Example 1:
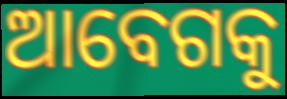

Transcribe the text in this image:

ଆବେଗକୁ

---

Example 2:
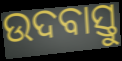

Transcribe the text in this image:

ଉଦବାସ୍ତୁ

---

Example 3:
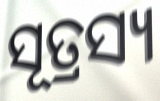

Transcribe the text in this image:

ସୂତ୍ରସ୍ୟ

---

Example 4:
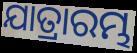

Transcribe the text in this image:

ଯାତ୍ରାରମ୍ଭ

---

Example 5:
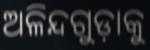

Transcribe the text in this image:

ଅଳିନ୍ଦଗୁଡ଼ାକୁ